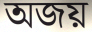
অজয়